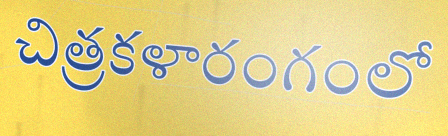
చిత్రకళారంగంలో